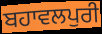
ਬਹਾਵਲਪੁਰੀ